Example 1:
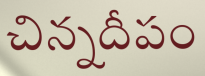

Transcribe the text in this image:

చిన్నదీపం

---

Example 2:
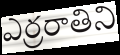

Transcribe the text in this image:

ఎర్రరాతిని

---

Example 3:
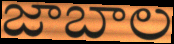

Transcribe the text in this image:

జాబాల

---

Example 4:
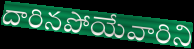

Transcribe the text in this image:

దారినపోయేవారిని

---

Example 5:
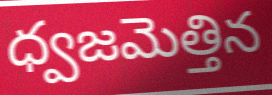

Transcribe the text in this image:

ధ్వజమెత్తిన